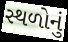
સ્થળોનું